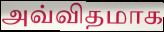
அவ்விதமாக